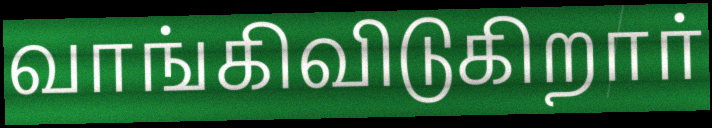
வாங்கிவிடுகிறார்